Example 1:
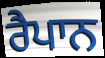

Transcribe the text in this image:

ਰੈਪਾਨ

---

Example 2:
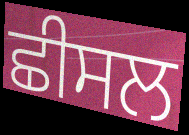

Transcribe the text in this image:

ਛੀਸਲ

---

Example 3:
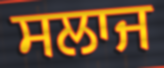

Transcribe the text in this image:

ਸਲਾਜ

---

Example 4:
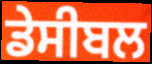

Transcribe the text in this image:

ਡੇਸੀਬਲ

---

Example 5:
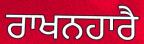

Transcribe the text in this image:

ਰਾਖਨਹਾਰੈ